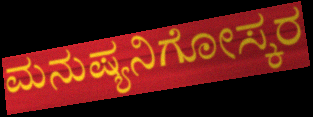
ಮನುಷ್ಯನಿಗೋಸ್ಕರ